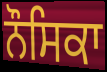
ਨੌਸਿਕਾ